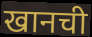
खानची